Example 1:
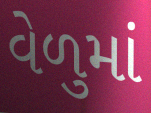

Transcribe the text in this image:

વેળુમાં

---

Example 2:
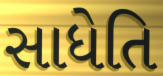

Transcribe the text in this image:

સાધેતિ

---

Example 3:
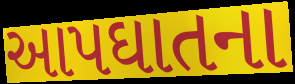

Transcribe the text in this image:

આપઘાતના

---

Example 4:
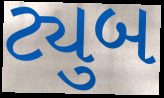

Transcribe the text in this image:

ટ્યુબ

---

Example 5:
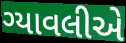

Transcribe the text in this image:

ગ્યાવલીએ